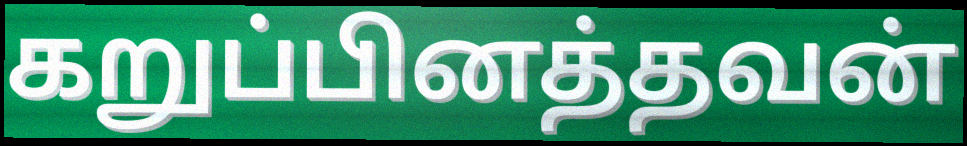
கறுப்பினத்தவன்